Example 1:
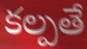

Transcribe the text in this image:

కల్పతే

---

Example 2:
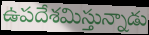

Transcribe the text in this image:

ఉపదేశమిస్తున్నాడు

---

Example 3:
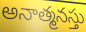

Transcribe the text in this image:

అనాత్మనస్తు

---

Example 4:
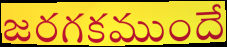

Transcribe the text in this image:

జరగకముందే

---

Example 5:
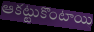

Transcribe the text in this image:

ఆకట్టుకొంటాయి